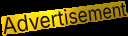
Advertisement